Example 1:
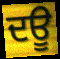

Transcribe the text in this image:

ਦਊ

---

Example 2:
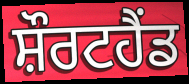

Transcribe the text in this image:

ਸ਼ੌਰਟਹੈਂਡ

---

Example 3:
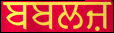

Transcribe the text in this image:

ਬਬਲਜ਼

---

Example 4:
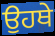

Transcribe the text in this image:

ਉਹਥੇ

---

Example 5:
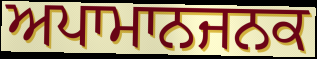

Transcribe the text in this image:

ਅਪਾਮਾਨਜਨਕ